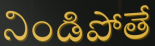
నిండిపోతే